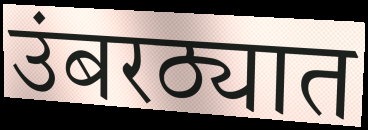
उंबरठ्यात